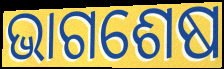
ଭାଗଶେଷ